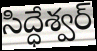
సిద్ధేశ్వర్